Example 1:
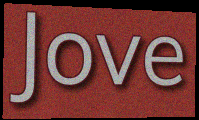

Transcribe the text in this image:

Jove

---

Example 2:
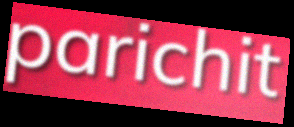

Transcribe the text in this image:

parichit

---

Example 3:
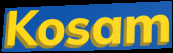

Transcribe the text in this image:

Kosam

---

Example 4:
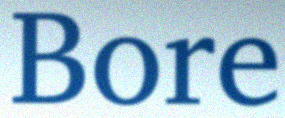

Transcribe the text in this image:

Bore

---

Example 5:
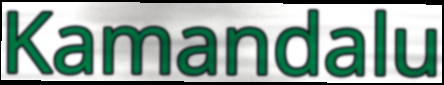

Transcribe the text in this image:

Kamandalu